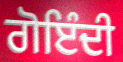
ਗੋਇੰਦੀ